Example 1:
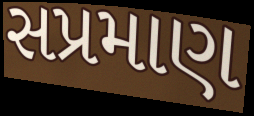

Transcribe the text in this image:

સપ્રમાણ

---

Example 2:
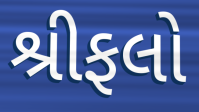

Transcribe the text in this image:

શ્રીફલો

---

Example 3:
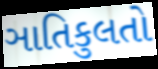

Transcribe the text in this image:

ઞાતિકુલતો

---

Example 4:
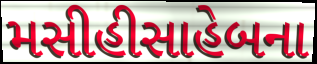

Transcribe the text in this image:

મસીહીસાહેબના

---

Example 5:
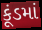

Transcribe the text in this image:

કૂંડમાં